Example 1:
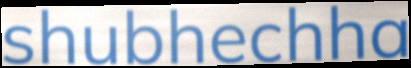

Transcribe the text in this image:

shubhechha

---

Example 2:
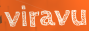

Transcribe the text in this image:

viravu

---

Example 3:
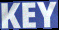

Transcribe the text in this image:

KEY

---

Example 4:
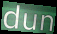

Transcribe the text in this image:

dun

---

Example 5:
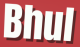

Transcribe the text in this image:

Bhul